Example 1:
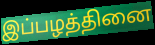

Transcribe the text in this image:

இப்பழத்தினை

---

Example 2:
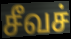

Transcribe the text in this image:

சீவச்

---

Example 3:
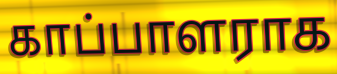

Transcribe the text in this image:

காப்பாளராக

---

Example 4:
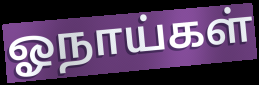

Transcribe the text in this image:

ஓநாய்கள்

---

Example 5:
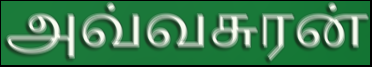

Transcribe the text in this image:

அவ்வசுரன்